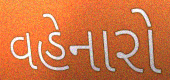
વહેનારો